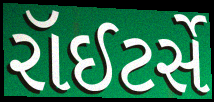
રૉઈટર્સે